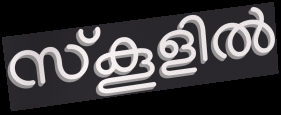
സ്കൂളിൽ